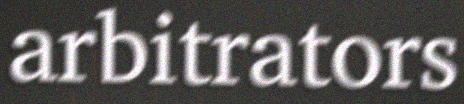
arbitrators